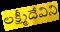
లక్ష్మీదేవిని